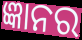
ଜ୍ଞାନର